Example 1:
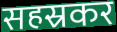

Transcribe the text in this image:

सहस्रकर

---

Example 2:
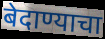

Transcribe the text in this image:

बेदाण्याचा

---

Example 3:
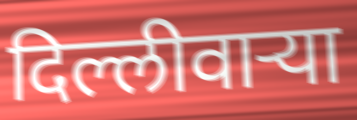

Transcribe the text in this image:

दिल्लीवाऱ्या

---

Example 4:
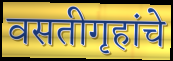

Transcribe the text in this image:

वसतीगृहांचे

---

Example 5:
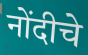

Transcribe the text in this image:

नोंदीचे